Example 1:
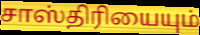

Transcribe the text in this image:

சாஸ்திரியையும்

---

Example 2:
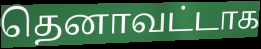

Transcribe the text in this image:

தெனாவட்டாக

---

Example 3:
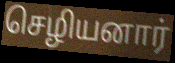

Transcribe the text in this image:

செழியனார்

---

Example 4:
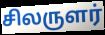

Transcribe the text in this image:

சிலருளர்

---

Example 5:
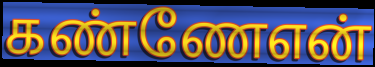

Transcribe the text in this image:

கண்ணேஎன்